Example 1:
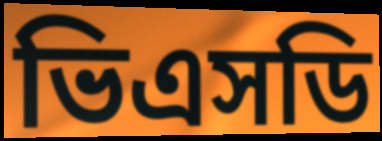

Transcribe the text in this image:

ভিএসডি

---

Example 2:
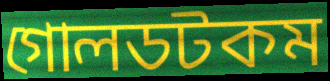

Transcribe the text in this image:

গোলডটকম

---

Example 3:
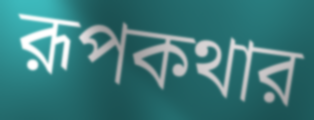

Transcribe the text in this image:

রূপকথার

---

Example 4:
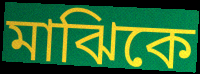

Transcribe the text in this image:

মাঝিকে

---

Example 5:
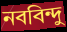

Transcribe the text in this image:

নববিন্দু